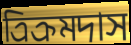
ত্রিক্রমদাস